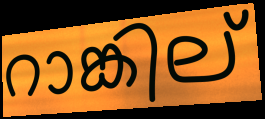
റാങ്കില്